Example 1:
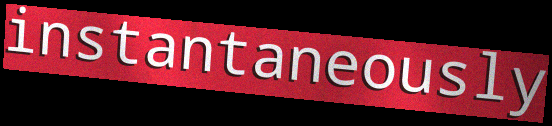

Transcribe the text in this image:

instantaneously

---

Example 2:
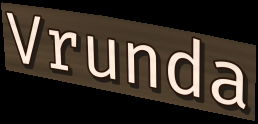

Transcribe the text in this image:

Vrunda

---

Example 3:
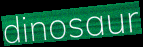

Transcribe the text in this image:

dinosaur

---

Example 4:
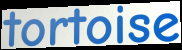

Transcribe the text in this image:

tortoise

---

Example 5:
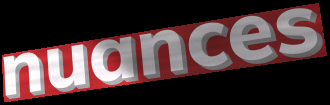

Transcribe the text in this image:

nuances